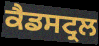
ਕੈਡਸਟ੍ਰਲ